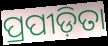
ପ୍ରପୀଡ଼ିତା